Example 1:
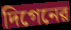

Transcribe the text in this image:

দিগেনের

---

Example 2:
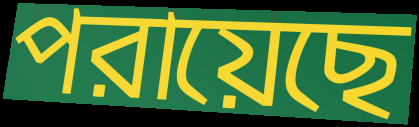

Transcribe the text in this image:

পরায়েছে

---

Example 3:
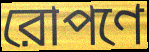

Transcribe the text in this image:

রোপণে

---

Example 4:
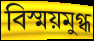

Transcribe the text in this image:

বিস্ময়মুগ্ধ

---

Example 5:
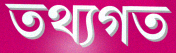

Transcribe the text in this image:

তথ্যগত